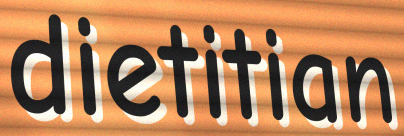
dietitian